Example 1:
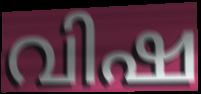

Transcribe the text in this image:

വിഷ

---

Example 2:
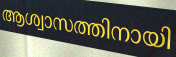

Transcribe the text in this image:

ആശ്വാസത്തിനായി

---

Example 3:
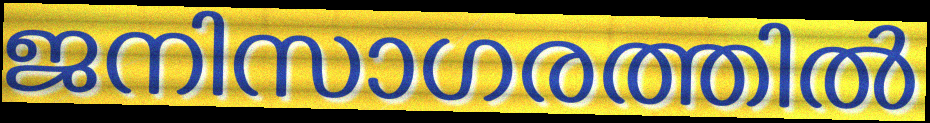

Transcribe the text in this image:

ജനിസാഗരത്തിൽ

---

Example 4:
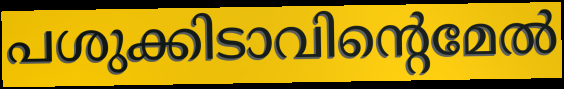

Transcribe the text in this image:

പശുക്കിടാവിന്റെമേൽ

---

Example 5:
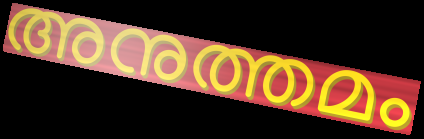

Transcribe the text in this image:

അനുത്തമം